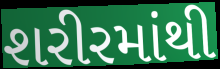
શરીરમાંથી